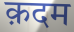
क़दम